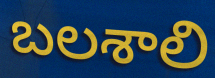
బలశాలి